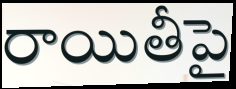
రాయితీపై